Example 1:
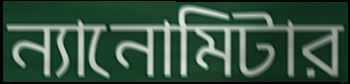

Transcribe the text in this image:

ন্যানোমিটার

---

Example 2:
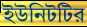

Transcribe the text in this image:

ইউনিটটির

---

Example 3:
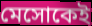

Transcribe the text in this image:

মেসোকেই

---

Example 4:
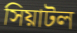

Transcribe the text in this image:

সিয়াটল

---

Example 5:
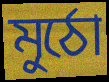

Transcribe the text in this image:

মুঠো